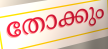
തോക്കും